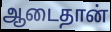
ஆடைதான்